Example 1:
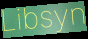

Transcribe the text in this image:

Libsyn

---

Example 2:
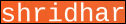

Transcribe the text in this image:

shridhar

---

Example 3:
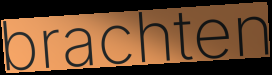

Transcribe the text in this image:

brachten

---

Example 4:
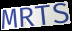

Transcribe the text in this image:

MRTS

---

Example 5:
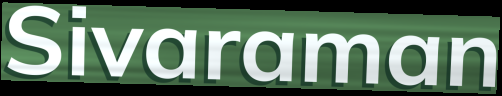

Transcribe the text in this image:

Sivaraman